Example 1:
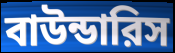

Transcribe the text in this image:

বাউন্ডারিস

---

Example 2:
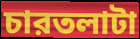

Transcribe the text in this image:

চারতলাটা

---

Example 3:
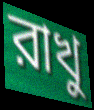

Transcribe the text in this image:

রাখু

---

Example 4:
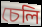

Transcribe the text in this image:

চেলি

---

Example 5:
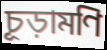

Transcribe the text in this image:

চূড়ামণি